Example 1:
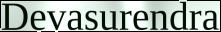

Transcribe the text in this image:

Devasurendra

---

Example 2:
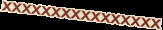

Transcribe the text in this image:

xxxxxxxxxxxxxxxx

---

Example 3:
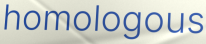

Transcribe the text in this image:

homologous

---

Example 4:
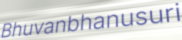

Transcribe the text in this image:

Bhuvanbhanusuri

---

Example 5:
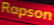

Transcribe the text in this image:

Rapson